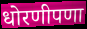
धोरणीपणा